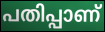
പതിപ്പാണ്